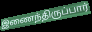
இணைந்திருப்பார்